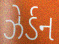
ઝેર્ડન